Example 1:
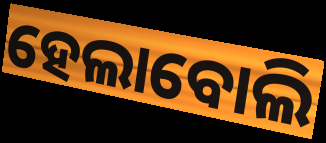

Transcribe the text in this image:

ହେଲାବୋଲି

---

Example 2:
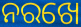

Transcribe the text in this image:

ନରଖେ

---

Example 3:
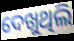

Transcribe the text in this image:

ଦେଖୁଥିଲି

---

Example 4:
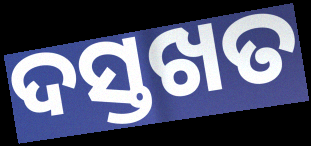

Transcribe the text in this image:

ଦସ୍ତଖତ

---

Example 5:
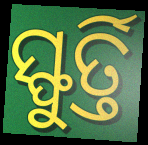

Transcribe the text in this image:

ସ୍ଫୁର୍ତ୍ତି